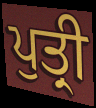
ਪੁਤ੍ਰੀ